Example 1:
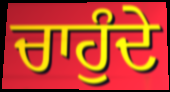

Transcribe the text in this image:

ਚਾਹੁੰਦੇ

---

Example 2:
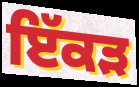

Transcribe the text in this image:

ਇੱਕੜ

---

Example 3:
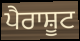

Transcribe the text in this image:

ਪੈਰਾਸ਼ੂਟ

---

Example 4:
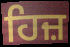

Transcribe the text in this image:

ਹਿਜ਼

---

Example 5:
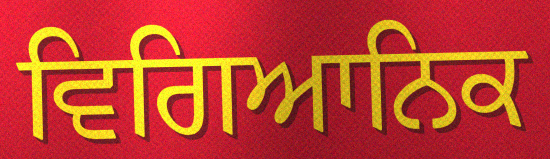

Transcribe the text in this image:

ਵਿਗਿਆਨਿਕ